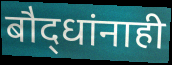
बौद्धांनाही